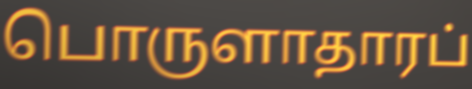
பொருளாதாரப்